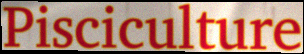
Pisciculture